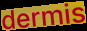
dermis